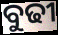
ବୁଢୀ